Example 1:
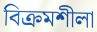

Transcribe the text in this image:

বিক্ৰমশীলা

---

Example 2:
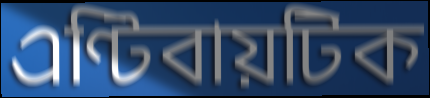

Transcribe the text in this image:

এণ্টিবায়টিক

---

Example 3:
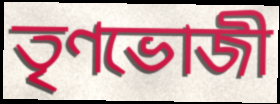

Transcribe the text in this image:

তৃণভোজী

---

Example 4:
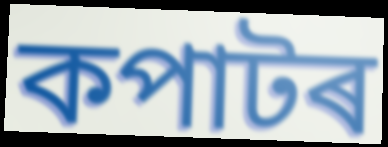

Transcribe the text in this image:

কপাটৰ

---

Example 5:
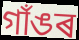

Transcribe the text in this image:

গাঁঙৰ